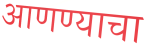
आणण्याचा